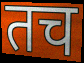
तच